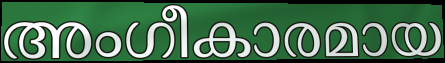
അംഗീകാരമായ